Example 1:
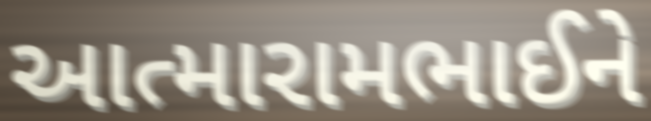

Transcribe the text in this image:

આત્મારામભાઈને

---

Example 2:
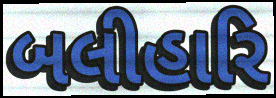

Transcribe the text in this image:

બલીહારિ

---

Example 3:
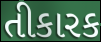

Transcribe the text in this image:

તીકારક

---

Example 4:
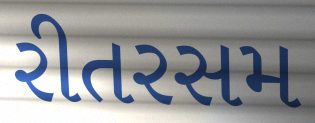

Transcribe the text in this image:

રીતરસમ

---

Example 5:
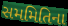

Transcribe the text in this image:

સમમિતિના